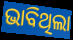
ଭାବିଥିଲା